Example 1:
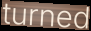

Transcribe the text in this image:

turned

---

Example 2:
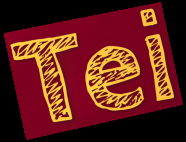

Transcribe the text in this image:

Tei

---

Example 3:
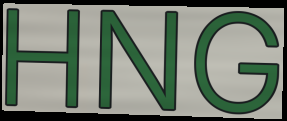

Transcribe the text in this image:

HNG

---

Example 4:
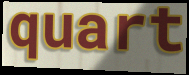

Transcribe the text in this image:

quart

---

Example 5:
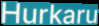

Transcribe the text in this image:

Hurkaru